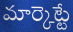
మార్కెట్టే